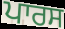
ਪਾਰਸ